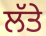
ਲੱਤੇ